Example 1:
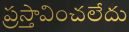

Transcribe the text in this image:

ప్రస్తావించలేదు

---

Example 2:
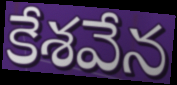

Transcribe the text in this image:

కేశవేన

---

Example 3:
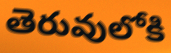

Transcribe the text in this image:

తెరువులోకి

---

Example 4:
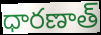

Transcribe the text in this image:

ధారణాత్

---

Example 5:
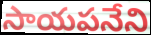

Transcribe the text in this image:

సాయపనేని